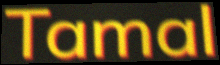
Tamal